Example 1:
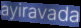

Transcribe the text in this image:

ayiravada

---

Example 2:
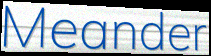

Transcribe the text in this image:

Meander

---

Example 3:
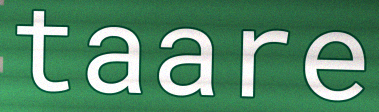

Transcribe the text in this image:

taare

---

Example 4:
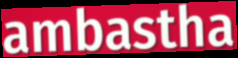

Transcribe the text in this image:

ambastha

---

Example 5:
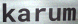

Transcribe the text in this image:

karum